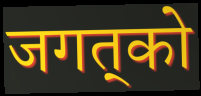
जगत्‌को